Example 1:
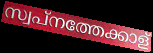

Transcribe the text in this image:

സ്വപ്നത്തേക്കാള്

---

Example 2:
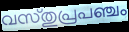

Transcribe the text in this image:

വസ്തുപ്രപഞ്ചം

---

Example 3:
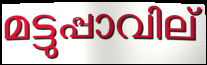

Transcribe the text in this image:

മട്ടുപ്പാവില്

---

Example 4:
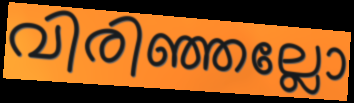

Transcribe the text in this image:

വിരിഞ്ഞല്ലോ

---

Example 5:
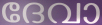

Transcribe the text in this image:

ദേവാ